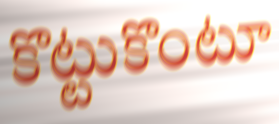
కొట్టుకొంటూ